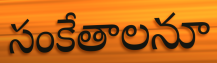
సంకేతాలనూ